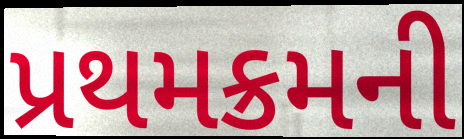
પ્રથમક્રમની